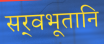
सर्वभूतानि